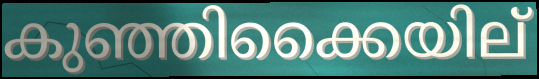
കുഞ്ഞിക്കൈയില്